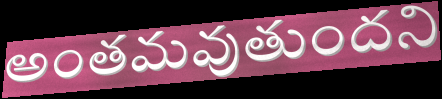
అంతమవుతుందని